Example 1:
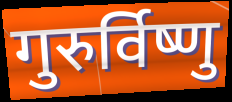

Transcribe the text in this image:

गुरुर्विष्णु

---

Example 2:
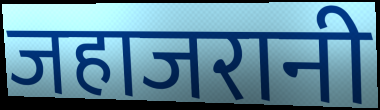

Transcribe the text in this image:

जहाजरानी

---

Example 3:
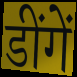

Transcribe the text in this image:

डींगें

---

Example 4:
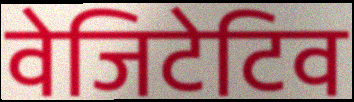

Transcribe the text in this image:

वेजिटेटिव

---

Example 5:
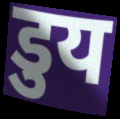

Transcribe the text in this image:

डुय